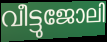
വീട്ടുജോലി